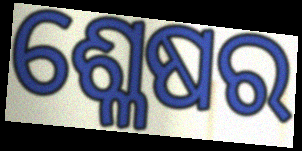
ଶ୍ଳେଷର